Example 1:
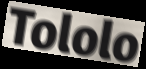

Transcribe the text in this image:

Tololo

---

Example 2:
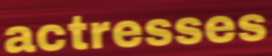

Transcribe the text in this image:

actresses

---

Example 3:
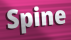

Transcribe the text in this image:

Spine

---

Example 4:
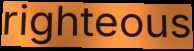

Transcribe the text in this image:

righteous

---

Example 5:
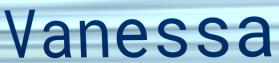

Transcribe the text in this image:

Vanessa